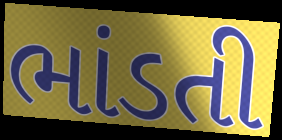
ભાંડતી